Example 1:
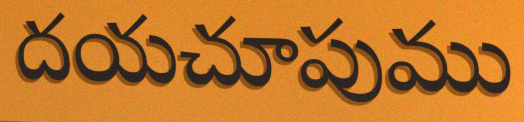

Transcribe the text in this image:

దయచూపుము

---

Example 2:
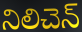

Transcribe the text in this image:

నిలిచెన్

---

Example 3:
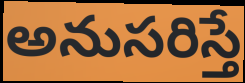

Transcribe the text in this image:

అనుసరిస్తే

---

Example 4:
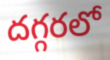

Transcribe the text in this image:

దగ్గరలో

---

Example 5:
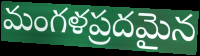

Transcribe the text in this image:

మంగళప్రదమైన